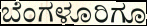
ಬೆಂಗಳೂರಿಗೂ